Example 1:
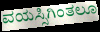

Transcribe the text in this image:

ವಯಸ್ಸಿಗಿಂತಲೂ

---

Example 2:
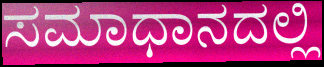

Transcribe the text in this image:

ಸಮಾಧಾನದಲ್ಲಿ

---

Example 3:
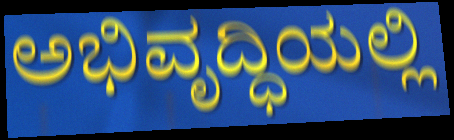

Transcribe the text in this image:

ಅಭಿವೃದ್ಧಿಯಲ್ಲಿ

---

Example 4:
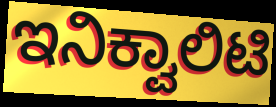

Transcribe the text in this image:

ಇನಿಕ್ವಾಲಿಟಿ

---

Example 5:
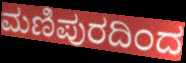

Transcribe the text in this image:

ಮಣಿಪುರದಿಂದ